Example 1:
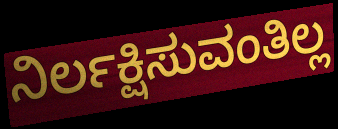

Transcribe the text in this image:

ನಿರ್ಲಕ್ಷಿಸುವಂತಿಲ್ಲ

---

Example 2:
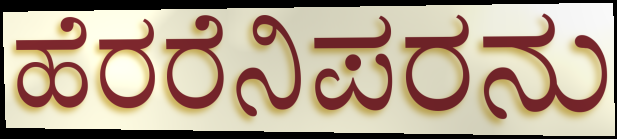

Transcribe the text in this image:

ಹೆರರೆನಿಪರನು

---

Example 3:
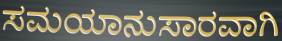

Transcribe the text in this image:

ಸಮಯಾನುಸಾರವಾಗಿ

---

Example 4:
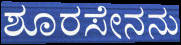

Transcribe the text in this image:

ಶೂರಸೇನನು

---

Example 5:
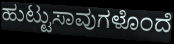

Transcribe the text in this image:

ಹುಟ್ಟುಸಾವುಗಳೊಂದೆ